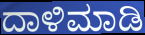
ದಾಳಿಮಾಡಿ